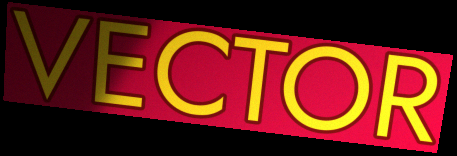
VECTOR